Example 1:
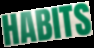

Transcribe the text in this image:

HABITS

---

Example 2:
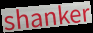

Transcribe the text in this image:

shanker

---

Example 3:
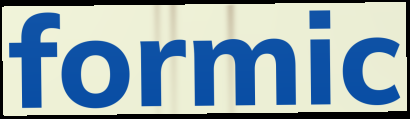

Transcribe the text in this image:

formic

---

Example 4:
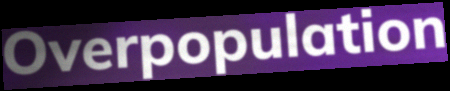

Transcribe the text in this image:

Overpopulation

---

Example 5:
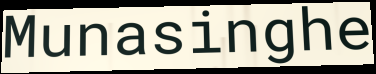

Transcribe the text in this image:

Munasinghe